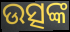
ଉତ୍ସଙ୍କ